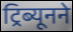
ट्रिब्यूनने